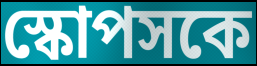
স্কোপসকে